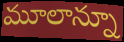
మూలాన్నూ